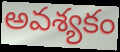
అవశ్యకం